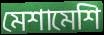
মেশামেশি